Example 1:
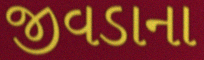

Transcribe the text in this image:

જીવડાના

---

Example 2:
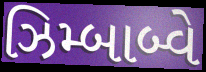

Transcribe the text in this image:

ઝિમ્બાબ્વે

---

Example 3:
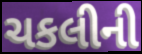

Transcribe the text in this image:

ચકલીની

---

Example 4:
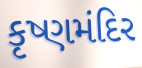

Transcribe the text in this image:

કૃષ્ણમંદિર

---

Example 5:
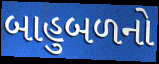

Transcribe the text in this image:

બાહુબળનો